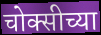
चोक्सीच्या